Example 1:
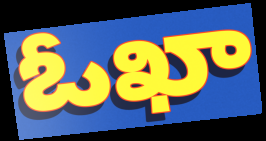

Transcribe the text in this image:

ఓఖా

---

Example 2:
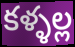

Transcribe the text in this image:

కళ్ళల్ల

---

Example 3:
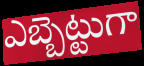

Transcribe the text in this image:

ఎబ్బెట్టుగా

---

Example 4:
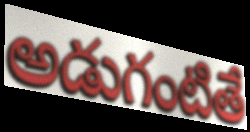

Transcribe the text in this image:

అడుగంటితే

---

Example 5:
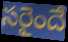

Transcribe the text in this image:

సరైందే